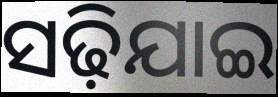
ସଢ଼ିଯାଇ